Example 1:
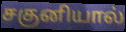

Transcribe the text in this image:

சகுனியால்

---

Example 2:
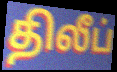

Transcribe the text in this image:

திலீப்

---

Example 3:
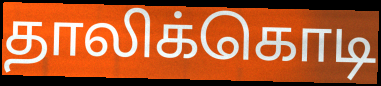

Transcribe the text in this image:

தாலிக்கொடி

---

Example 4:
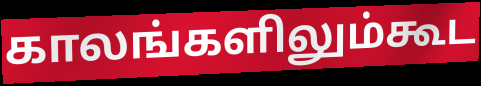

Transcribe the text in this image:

காலங்களிலும்கூட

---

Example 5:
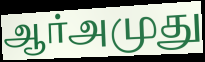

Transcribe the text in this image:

ஆர்அமுது